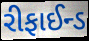
રીફાઈન્ડ